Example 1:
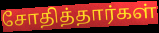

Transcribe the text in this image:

சோதித்தார்கள்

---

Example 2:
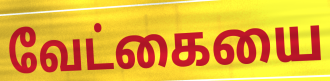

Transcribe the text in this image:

வேட்கையை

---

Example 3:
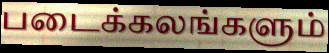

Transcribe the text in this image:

படைக்கலங்களும்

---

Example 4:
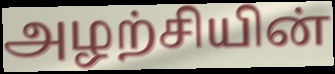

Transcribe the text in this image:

அழற்சியின்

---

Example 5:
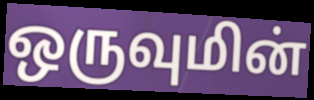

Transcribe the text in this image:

ஒருவுமின்